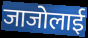
जाजोलाई